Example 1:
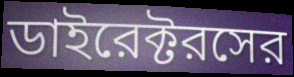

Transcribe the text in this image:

ডাইরেক্টরসের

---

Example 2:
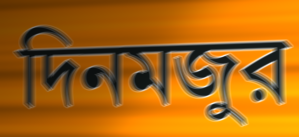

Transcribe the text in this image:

দিনমজুর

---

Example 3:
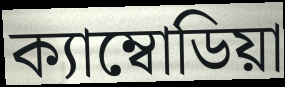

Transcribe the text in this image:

ক্যাম্বোডিয়া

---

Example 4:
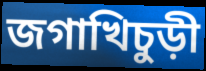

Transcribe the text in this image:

জগাখিচুড়ী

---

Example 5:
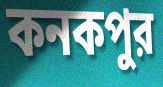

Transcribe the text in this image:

কনকপুর